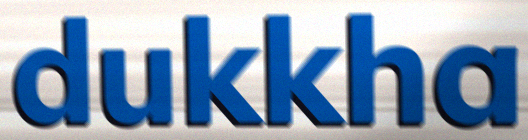
dukkha